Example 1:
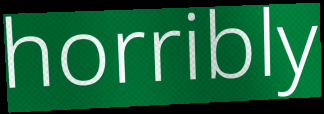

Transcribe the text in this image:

horribly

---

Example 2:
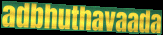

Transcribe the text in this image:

adbhuthavaada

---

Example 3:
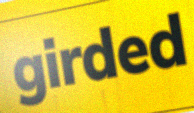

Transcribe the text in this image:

girded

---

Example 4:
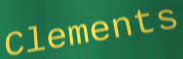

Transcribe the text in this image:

Clements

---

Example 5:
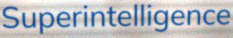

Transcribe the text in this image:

Superintelligence